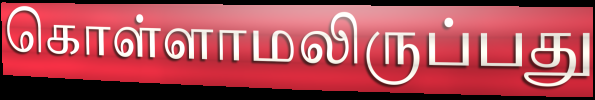
கொள்ளாமலிருப்பது